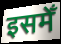
इसमेँ